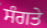
ਸੰਗਤੇ